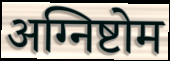
अग्निष्टोम